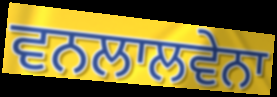
ਵਨਲਾਲਵੇਨਾ